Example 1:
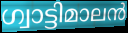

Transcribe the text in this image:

ഗ്വാട്ടിമാലൻ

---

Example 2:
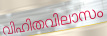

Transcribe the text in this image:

വിഹിതവിലാസം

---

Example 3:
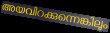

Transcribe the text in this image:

അയവിറക്കുന്നെങ്കിലും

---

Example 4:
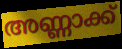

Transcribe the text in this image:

അണ്ണാക്ക്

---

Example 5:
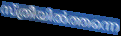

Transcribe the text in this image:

സ്ത്രീയിൽത്തന്നെ